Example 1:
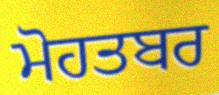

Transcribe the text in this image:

ਮੋਹਤਬਰ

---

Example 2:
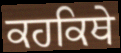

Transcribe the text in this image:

ਕਹਕਿਥੇ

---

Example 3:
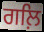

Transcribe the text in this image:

ਗਲ਼ਿ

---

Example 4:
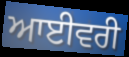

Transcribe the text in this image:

ਆਈਵਰੀ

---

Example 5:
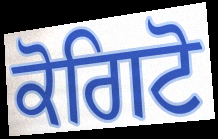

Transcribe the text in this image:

ਕੋਗਿਟੋ